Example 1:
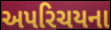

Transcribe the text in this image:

અપરિચયના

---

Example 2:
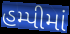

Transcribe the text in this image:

હમ્પીમાં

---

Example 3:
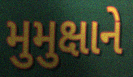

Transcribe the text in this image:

મુમુક્ષાને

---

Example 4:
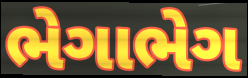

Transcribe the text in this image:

ભેગાભેગ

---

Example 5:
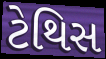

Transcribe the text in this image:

ટેથિસ